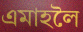
এমাহলৈ